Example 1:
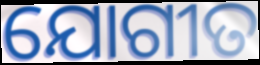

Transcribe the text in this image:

ଯୋଗୀତ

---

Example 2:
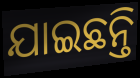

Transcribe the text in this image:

ଯାଇଛନ୍ତି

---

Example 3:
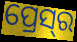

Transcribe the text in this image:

ପ୍ରେସ୍‌ର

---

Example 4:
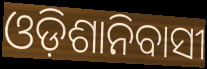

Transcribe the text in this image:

ଓଡ଼ିଶାନିବାସୀ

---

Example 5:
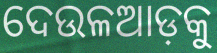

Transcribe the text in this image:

ଦେଉଳଆଡ଼କୁ